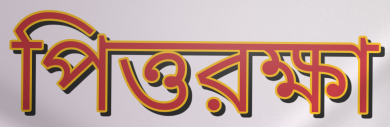
পিত্তরক্ষা